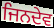
ਜਿਨਦੇਵ